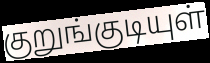
குறுங்குடியுள்